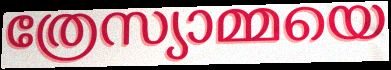
ത്രേസ്യാമ്മയെ